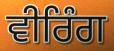
ਵੀਰਿੰਗ